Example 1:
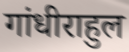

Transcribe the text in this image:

गांधीराहुल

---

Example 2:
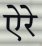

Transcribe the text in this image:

ऐरे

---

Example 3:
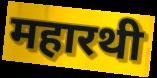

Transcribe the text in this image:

महारथी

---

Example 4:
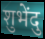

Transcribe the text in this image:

शुभेंदु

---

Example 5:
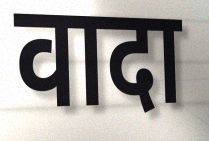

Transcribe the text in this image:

वादा